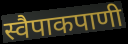
स्वैपाकपाणी